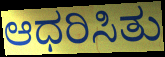
ಆಧರಿಸಿತು